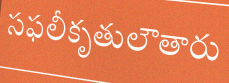
సఫలీకృతులౌతారు